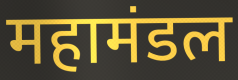
महामंडल